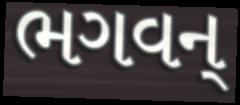
ભગવન્